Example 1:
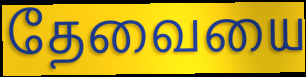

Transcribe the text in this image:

தேவையை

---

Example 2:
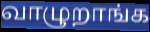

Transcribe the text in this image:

வாழுறாங்க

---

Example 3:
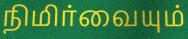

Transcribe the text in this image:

நிமிர்வையும்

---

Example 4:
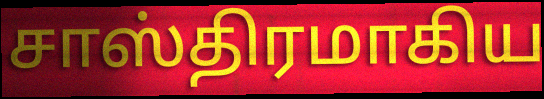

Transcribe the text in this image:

சாஸ்திரமாகிய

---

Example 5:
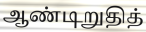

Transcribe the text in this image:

ஆண்டிறுதித்